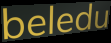
beledu